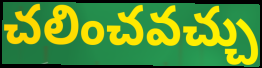
చలించవచ్చు